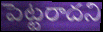
పెట్టరాదని